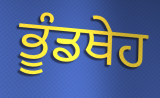
ਭੂੰਡਥੇਹ